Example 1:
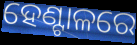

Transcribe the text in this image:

ହେଣ୍ଟାଳରେ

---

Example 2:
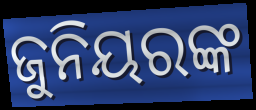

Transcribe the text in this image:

ଜୁନିୟରଙ୍କ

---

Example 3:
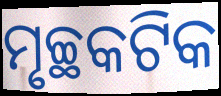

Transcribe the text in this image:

ମୃଚ୍ଛକଟିକ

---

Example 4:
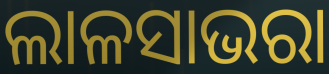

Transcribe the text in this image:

ଲାଳସାଭରା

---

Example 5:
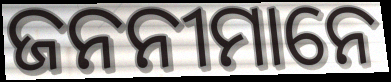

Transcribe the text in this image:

ଜନନୀମାନେ